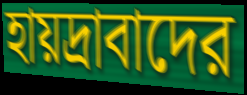
হায়দ্রাবাদের